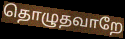
தொழுதவாறே